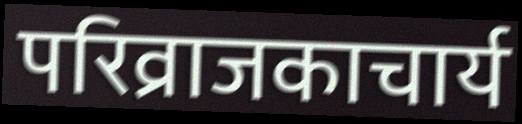
परिव्राजकाचार्य